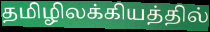
தமிழிலக்கியத்தில்